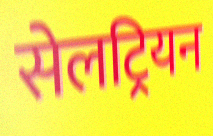
सेलट्रियन